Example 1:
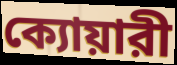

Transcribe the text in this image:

ক্যোয়ারী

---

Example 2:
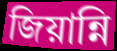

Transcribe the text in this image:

জিয়ান্নি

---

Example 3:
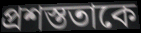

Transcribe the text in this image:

প্রশস্ততাকে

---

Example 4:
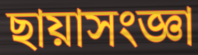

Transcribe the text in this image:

ছায়াসংজ্ঞা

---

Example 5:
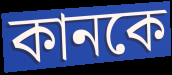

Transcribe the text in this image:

কানকে